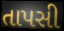
તાપસી